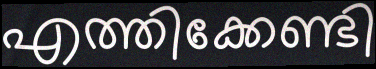
എത്തിക്കേണ്ടി